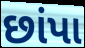
છાંપા